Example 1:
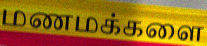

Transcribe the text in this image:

மணமக்களை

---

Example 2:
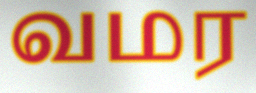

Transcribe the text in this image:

வமர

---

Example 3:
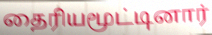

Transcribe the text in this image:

தைரியமூட்டினார்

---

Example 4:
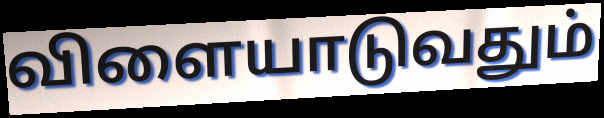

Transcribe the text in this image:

விளையாடுவதும்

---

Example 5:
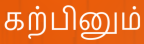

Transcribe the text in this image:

கற்பினும்